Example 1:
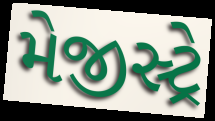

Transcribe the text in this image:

મેજીસ્ર્ટ્રે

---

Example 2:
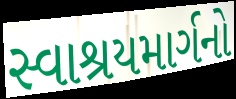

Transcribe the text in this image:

સ્વાશ્રયમાર્ગનો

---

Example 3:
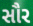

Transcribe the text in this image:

સૌર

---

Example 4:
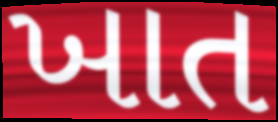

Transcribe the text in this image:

ખાત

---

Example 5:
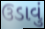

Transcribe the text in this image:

ઉડાવું